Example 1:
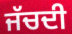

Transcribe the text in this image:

ਜੱਚਦੀ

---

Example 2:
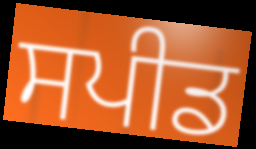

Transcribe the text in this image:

ਸਪੀਡ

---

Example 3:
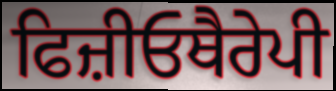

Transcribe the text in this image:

ਫਿਜ਼ੀਓਥੈਰੇਪੀ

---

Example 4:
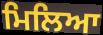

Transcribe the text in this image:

ਮਿਲਿਆ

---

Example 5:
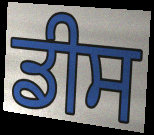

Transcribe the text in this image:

ਡੀਸ